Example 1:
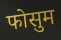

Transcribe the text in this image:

फोसुम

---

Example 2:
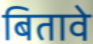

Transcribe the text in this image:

बितावे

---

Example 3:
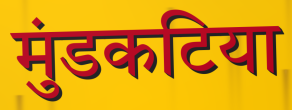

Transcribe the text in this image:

मुंडकटिया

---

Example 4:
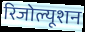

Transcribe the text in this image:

रिजोल्‍यूशन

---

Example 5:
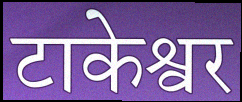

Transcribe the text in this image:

टाकेश्वर